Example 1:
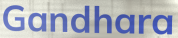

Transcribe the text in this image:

Gandhara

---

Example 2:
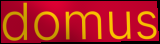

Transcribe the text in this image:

domus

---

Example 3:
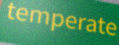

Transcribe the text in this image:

temperate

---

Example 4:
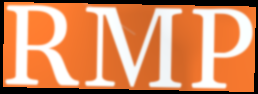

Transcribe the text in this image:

RMP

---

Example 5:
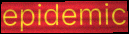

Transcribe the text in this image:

epidemic